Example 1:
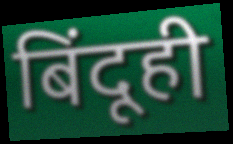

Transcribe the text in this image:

बिंदूही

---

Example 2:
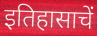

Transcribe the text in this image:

इतिहासाचें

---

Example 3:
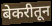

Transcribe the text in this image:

बेकरीतून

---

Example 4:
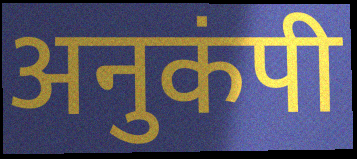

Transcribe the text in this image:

अनुकंपी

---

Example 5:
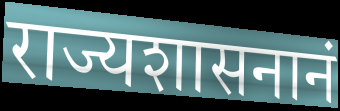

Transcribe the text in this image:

राज्यशासनानं